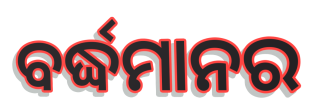
ବର୍ଦ୍ଧମାନର